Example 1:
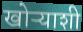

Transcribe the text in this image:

खोऱ्याशी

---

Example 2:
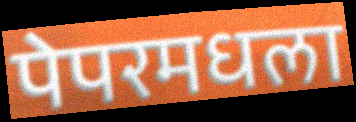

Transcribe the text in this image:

पेपरमधला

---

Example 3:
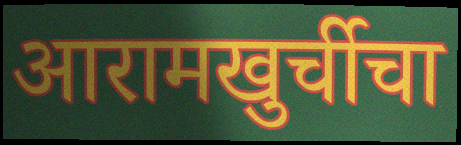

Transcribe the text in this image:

आरामखुर्चीचा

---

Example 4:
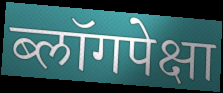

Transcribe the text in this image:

ब्लॉगपेक्षा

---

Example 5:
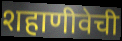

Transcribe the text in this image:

शहाणीवेची